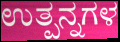
ಉತ್ಪನ್ನಗಳ